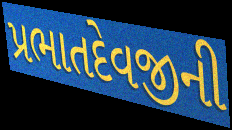
પ્રભાતદેવજીની